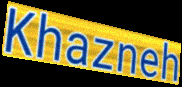
Khazneh